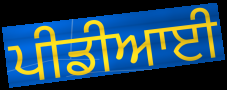
ਪੀਡੀਆਈ